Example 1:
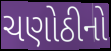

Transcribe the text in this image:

ચણોઠીનો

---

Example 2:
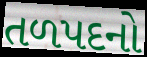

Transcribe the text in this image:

તળપદનો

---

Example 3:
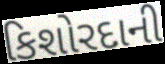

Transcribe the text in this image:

કિશોરદાની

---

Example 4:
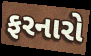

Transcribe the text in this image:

ફરનારો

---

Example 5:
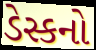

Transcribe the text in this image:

ડેસ્કનો